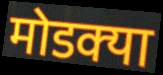
मोडक्या